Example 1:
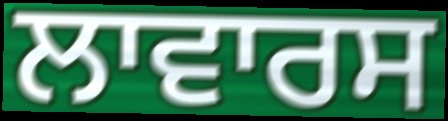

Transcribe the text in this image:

ਲਾਵਾਰਸ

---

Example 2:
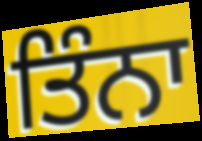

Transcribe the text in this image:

ਤਿੰਨਾ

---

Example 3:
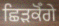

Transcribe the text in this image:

ਛਿੜਕੋਁਗੇ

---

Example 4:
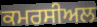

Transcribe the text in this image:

ਕਮਰਸੀਅਲ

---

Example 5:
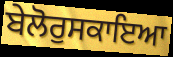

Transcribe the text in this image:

ਬੇਲੋਰੁਸਕਾਇਆ